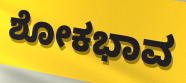
ಶೋಕಭಾವ